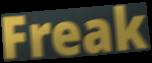
Freak